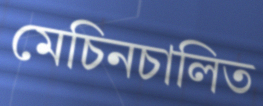
মেচিনচালিত